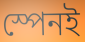
স্পেনই